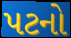
પટનો